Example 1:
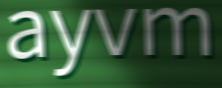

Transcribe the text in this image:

ayvm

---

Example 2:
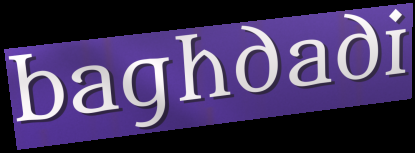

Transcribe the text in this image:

baghdadi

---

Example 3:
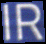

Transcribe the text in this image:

IR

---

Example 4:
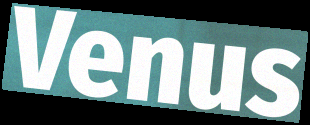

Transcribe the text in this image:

Venus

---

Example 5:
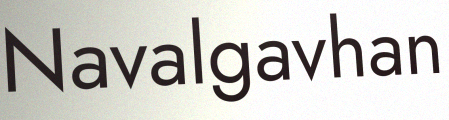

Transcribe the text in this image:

Navalgavhan